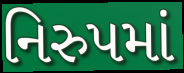
નિરુપમાં